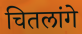
चितलांगे